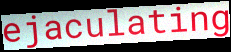
ejaculating